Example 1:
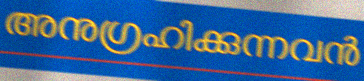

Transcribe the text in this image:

അനുഗ്രഹിക്കുന്നവൻ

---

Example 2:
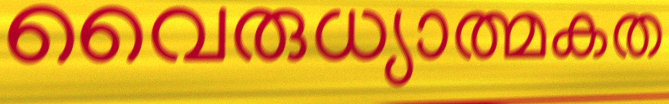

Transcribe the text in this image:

വൈരുധ്യാത്മകത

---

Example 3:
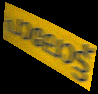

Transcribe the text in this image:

പാലോട്ട്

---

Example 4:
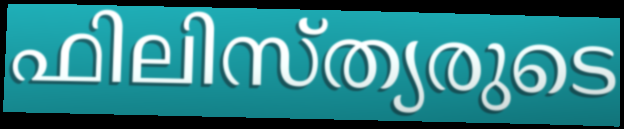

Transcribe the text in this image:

ഫിലിസ്ത്യരുടെ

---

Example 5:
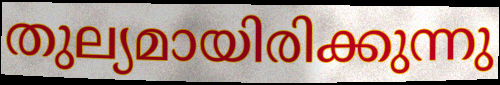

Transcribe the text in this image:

തുല്യമായിരിക്കുന്നു